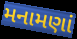
મનામણાં